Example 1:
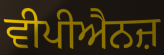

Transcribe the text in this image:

ਵੀਪੀਐਨਜ਼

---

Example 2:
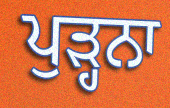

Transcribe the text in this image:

ਪੁੜ੍ਹਨਾ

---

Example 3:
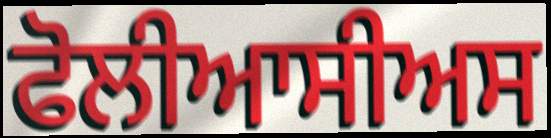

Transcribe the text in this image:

ਫੋਲੀਆਸੀਅਸ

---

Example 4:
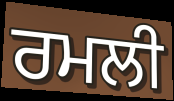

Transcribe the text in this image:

ਰਮਲੀ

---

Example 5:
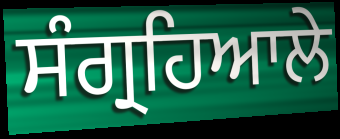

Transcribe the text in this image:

ਸੰਗ੍ਰਹਿਆਲੇ